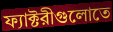
ফ্যাক্টরীগুলোতে